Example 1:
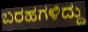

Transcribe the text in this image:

ಬರಹಗಳಿದ್ದು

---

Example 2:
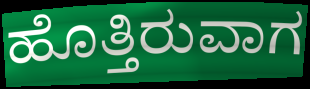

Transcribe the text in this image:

ಹೊತ್ತಿರುವಾಗ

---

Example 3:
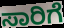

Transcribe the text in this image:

ಸಾರಿಗೆ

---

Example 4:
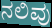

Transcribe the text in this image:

ನಲಿವು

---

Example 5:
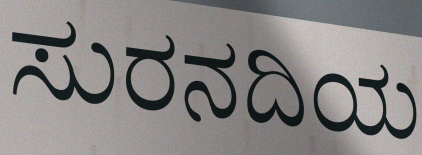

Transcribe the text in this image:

ಸುರನದಿಯ